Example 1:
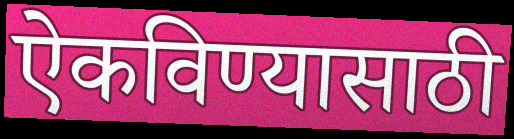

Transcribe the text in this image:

ऐकविण्यासाठी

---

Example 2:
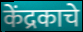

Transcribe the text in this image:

केंद्रकाचे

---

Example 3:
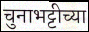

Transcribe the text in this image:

चुनाभट्टीच्या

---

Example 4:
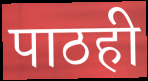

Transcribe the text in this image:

पाठही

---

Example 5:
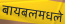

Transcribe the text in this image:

बायबलमधले